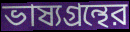
ভাষ্যগ্রন্থের